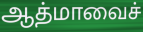
ஆத்மாவைச்